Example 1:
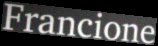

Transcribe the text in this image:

Francione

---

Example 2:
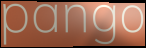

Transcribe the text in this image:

pango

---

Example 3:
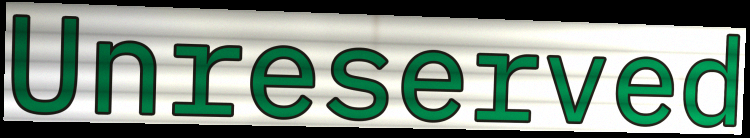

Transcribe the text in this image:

Unreserved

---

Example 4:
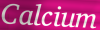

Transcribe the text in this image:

Calcium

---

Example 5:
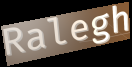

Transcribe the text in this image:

Ralegh